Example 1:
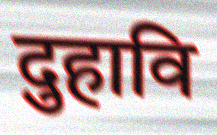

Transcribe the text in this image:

दुहावि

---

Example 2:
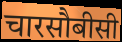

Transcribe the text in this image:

चारसौबीसी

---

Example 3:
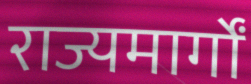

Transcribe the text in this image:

राज्यमार्गों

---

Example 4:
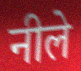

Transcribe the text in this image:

नीले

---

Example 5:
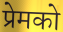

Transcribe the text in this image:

प्रेमको